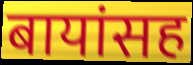
बायांसह